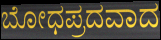
ಬೋಧಪ್ರದವಾದ